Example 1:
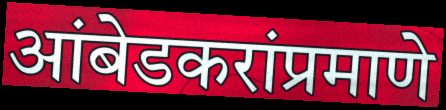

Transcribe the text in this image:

आंबेडकरांप्रमाणे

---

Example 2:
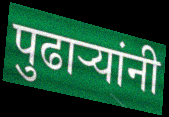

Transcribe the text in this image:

पुढाऱ्यांनी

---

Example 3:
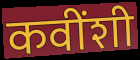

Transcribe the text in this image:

कवींशी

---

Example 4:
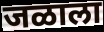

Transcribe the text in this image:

जळाला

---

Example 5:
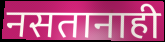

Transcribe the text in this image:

नसतानाही